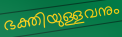
ഭക്തിയുള്ളവനും